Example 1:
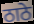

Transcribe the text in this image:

ठाठे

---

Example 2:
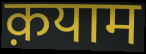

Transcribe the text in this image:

क़याम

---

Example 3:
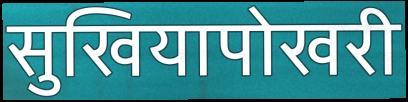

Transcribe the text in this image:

सुखियापोखरी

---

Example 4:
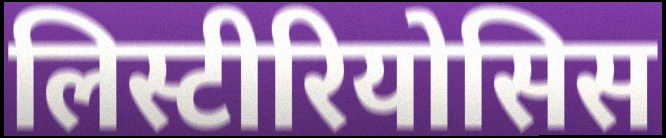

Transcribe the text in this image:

लिस्टीरियोसिस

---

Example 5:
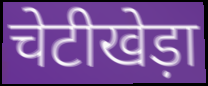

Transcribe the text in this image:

चेटीखेड़ा